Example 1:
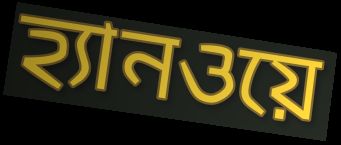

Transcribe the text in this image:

হ্যানওয়ে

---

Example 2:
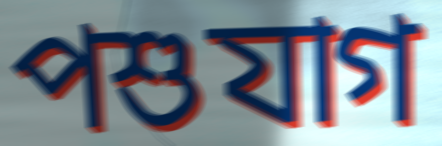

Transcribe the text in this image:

পশুযাগ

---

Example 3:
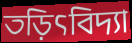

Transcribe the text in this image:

তড়িৎবিদ্যা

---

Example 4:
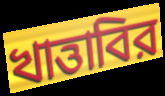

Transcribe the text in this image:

খাত্তাবির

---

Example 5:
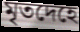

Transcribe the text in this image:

মৃতদেহে